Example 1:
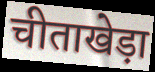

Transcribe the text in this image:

चीताखेड़ा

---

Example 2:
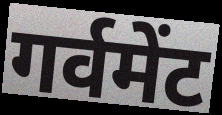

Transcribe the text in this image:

गर्वमेंट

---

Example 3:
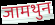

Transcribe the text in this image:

जामथुन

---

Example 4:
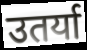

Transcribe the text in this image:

उतर्या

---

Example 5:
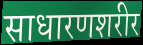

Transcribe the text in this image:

साधारणशरीर